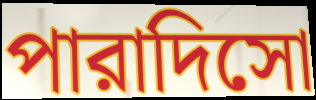
পারাদিসো